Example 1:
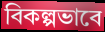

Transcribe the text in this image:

বিকল্পভাবে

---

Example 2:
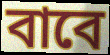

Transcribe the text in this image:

বাবে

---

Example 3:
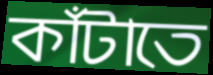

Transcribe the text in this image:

কাঁটাতে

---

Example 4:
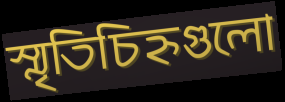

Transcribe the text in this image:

স্মৃতিচিহ্নগুলো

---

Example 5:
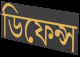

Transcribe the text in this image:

ডিফেন্স